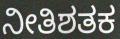
ನೀತಿಶತಕ